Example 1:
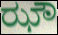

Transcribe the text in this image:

ಝೌ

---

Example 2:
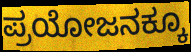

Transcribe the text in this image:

ಪ್ರಯೋಜನಕ್ಕೂ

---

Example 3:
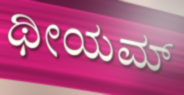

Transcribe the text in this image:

ಥೀಯಮ್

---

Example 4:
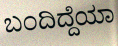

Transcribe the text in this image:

ಬಂದಿದ್ದೆಯಾ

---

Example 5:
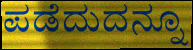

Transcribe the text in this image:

ಪಡೆದುದನ್ನೂ